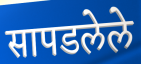
सापडलेले